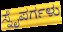
ಸ್ನೈಪರ್ಗಳು